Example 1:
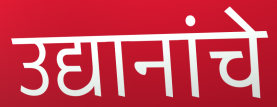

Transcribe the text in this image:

उद्यानांचे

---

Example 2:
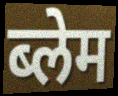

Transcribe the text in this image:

ब्लेम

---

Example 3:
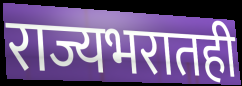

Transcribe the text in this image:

राज्यभरातही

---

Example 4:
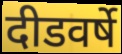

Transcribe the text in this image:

दीडवर्षे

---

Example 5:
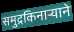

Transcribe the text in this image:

समुद्रकिनाऱ्याने